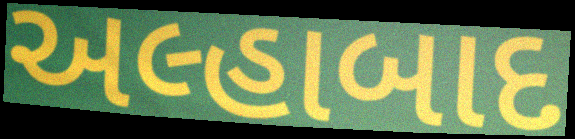
અલ્હાબાદ